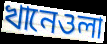
খানেওলা